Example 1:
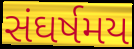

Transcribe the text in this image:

સંઘર્ષમય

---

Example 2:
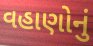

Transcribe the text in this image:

વહાણોનું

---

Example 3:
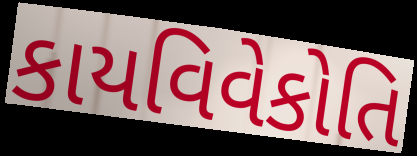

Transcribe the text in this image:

કાયવિવેકોતિ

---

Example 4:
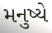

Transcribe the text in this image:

મનુષ્યે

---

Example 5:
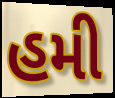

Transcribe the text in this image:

હમી